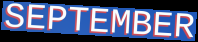
SEPTEMBER